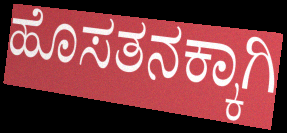
ಹೊಸತನಕ್ಕಾಗಿ